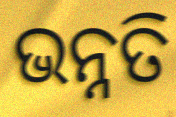
ଭନ୍ନତି